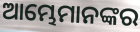
ଆମ୍ଭେମାନଙ୍କର